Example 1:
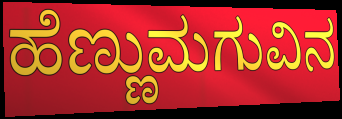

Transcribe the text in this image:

ಹೆಣ್ಣುಮಗುವಿನ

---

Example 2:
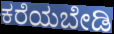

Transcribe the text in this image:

ಕರೆಯಬೇಡಿ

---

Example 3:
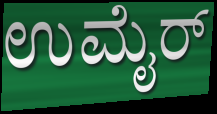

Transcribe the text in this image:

ಉಮೈರ್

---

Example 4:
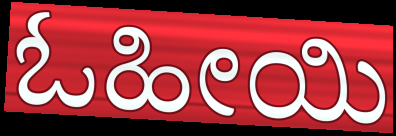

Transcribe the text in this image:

ಓಹೀಯಿ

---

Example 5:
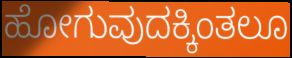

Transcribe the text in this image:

ಹೋಗುವುದಕ್ಕಿಂತಲೂ